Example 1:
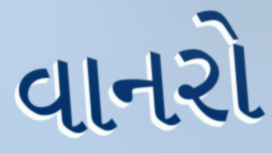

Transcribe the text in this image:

વાનરો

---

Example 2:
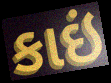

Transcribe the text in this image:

કાઇં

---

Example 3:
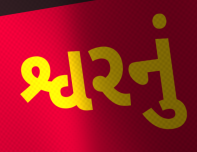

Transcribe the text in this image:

શ્વરનું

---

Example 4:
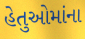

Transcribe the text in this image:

હેતુઓમાંના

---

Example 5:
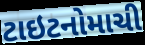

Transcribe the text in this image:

ટાઇટનોમાચી